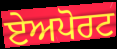
ਏਅਪੋਰਟ